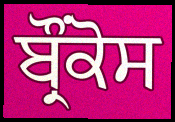
ਬ੍ਰੌਂਕੋਸ